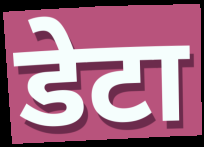
डेटा